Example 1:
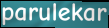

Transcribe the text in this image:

parulekar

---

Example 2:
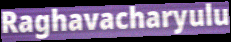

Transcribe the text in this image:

Raghavacharyulu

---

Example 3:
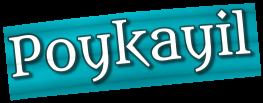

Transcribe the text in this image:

Poykayil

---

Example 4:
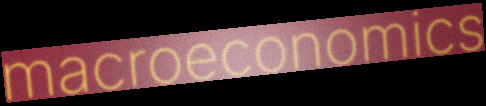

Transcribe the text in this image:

macroeconomics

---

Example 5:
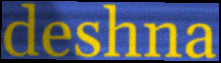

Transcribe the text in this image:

deshna